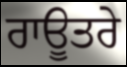
ਰਾਊਤਰੇ